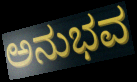
ಅನುಭವ